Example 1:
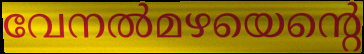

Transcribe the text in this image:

വേനൽമഴയെന്റെ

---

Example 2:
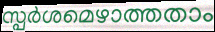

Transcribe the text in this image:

സ്പർശമെഴാത്തതാം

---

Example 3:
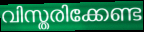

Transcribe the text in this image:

വിസ്തരിക്കേണ്ട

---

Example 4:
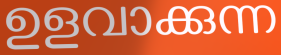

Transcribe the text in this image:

ഉളവാക്കുന്ന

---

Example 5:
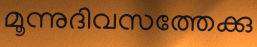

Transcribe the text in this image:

മൂന്നുദിവസത്തേക്കു